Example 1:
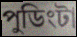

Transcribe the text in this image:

পুডিংটা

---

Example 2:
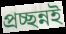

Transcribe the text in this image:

প্রচ্ছন্নই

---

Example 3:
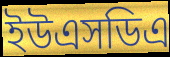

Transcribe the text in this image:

ইউএসডিএ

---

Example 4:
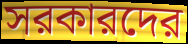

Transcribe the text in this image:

সরকারদের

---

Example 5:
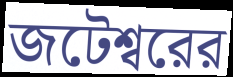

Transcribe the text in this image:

জটেশ্বরের